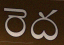
రెద